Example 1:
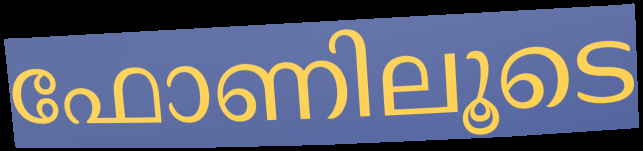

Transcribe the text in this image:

ഫോണിലൂടെ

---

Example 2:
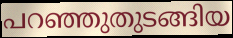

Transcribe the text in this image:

പറഞ്ഞുതുടങ്ങിയ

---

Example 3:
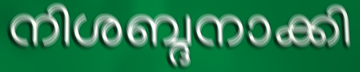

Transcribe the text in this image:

നിശബ്ദനാക്കി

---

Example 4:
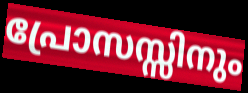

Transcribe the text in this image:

പ്രോസസ്സിനും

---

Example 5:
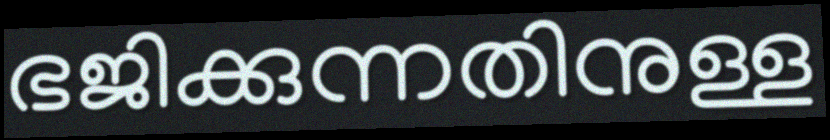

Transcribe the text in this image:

ഭജിക്കുന്നതിനുള്ള